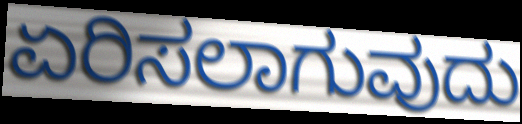
ಏರಿಸಲಾಗುವುದು